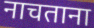
नाचताना